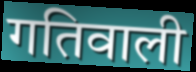
गतिवाली